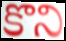
కొని